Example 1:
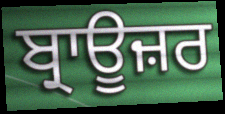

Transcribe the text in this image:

ਬ੍ਰਾਊਜ਼ਰ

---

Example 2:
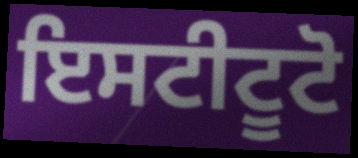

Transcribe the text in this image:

ਇਸਟੀਟੂਟੋ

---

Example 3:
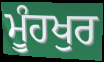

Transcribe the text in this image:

ਮੂੰਹਖੁਰ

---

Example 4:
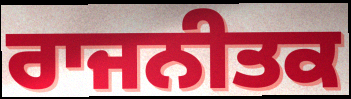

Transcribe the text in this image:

ਰਾਜਨੀਤਕ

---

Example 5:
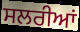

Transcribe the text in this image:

ਸਲਰੀਆਂ